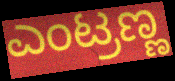
ಎಂಟ್ರಣ್ಣ